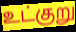
உட்குறு